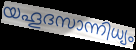
യഹൂദസാന്നിധ്യം